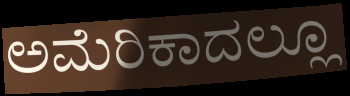
ಅಮೆರಿಕಾದಲ್ಲೂ